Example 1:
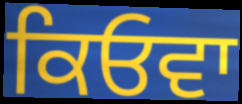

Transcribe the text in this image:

ਕਿਓਵਾ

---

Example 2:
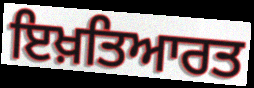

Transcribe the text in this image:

ਇਖ਼ਤਿਆਰਤ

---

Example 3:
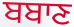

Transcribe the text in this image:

ਬਬਾਣ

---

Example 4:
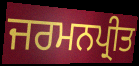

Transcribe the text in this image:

ਜਰਮਨਪ੍ਰੀਤ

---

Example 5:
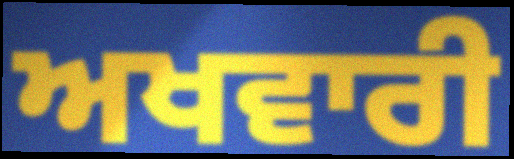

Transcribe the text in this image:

ਅਖਵਾਰੀ